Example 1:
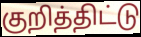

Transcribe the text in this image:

குறித்திட்டு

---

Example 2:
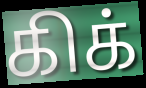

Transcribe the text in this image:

கிக்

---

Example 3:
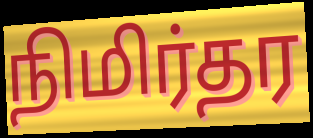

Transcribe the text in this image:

நிமிர்தர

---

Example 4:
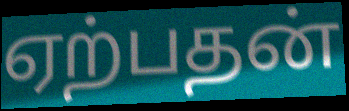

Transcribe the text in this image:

ஏற்பதன்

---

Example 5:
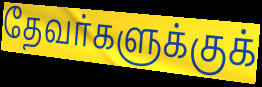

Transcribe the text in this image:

தேவர்களுக்குக்